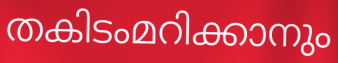
തകിടംമറിക്കാനും